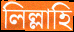
লিল্লাহি